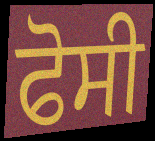
ਫੋਸੀ